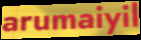
arumaiyil